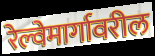
रेल्वेमार्गावरील